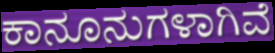
ಕಾನೂನುಗಳಾಗಿವೆ